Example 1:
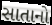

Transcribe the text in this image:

સાતાનો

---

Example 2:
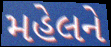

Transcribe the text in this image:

મહેલને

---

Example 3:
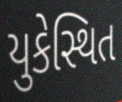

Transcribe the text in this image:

યુકેસ્થિત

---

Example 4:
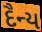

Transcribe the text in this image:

દૈન્ય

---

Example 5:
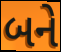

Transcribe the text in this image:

બને